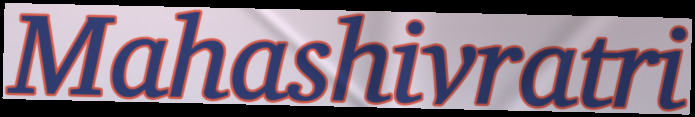
Mahashivratri